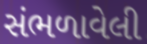
સંભળાવેલી